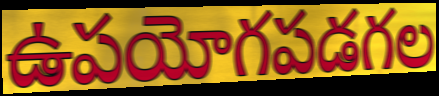
ఉపయోగపడగల